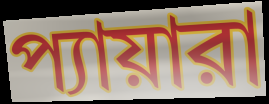
প্যায়ারা